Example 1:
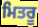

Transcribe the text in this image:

ਮਿਤਰੂ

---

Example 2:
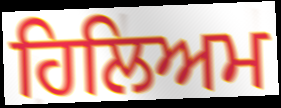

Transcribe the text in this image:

ਹਿਲਿਅਮ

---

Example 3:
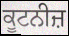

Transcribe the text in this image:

ਕੂਟਨੀਜ਼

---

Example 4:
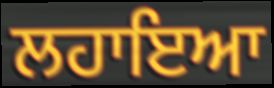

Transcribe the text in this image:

ਲਹਾਇਆ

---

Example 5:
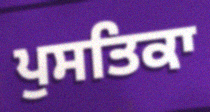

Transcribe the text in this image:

ਪੁਸਤਿਕਾ